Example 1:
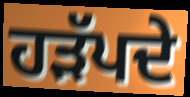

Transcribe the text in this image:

ਹੜੱਪਦੇ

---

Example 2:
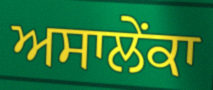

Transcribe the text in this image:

ਅਸਾਲੇਂਕਾ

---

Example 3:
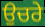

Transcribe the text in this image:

ਉਚਰੇ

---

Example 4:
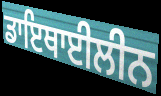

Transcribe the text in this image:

ਡਾਇਥਾਈਲੀਨ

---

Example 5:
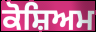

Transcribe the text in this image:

ਕੋਸ਼ਿਅਮ